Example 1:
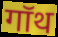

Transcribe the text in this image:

गॉथ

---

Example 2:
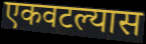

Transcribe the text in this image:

एकवटल्यास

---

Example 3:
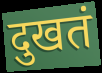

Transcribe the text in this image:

दुखतं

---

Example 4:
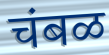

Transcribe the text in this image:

चंबळ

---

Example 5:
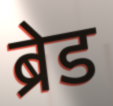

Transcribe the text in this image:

ब्रेड